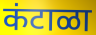
कंटाळा